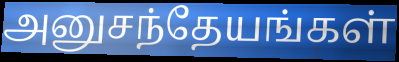
அனுசந்தேயங்கள்